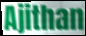
Ajithan